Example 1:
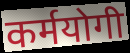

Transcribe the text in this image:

कर्मयोगी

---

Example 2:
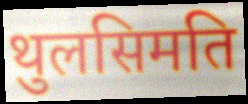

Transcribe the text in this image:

थुलसिमति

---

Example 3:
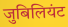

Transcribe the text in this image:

जुबिलियंट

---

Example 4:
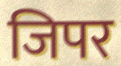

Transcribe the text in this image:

जिपर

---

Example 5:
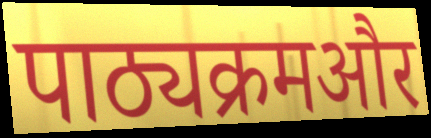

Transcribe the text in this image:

पाठ्यक्रमऔर